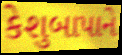
કેશુબાપાને